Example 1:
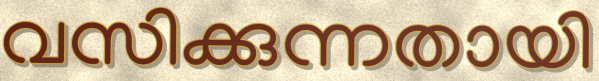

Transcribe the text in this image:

വസിക്കുന്നതായി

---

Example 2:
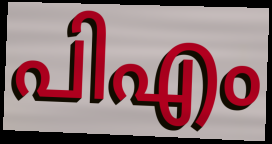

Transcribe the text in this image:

പിഎം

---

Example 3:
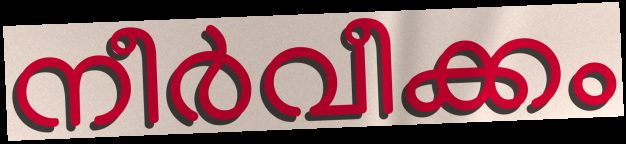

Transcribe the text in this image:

നീർവീക്കം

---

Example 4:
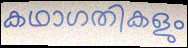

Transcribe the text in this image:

കഥാഗതികളും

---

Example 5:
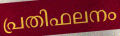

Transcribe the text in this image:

പ്രതിഫലനം